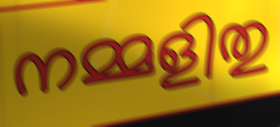
നമ്മളിതു